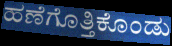
ಹಣೆಗೊತ್ತಿಕೊಂಡು